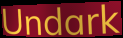
Undark